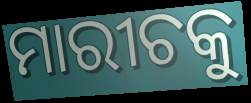
ମାରୀଚକୁ